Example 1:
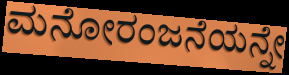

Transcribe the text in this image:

ಮನೋರಂಜನೆಯನ್ನೇ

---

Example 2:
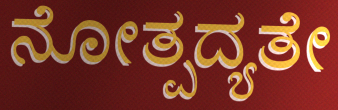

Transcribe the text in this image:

ನೋತ್ಪದ್ಯತೇ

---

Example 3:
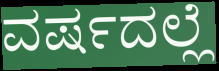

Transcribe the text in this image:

ವರ್ಷದಲ್ಲೆ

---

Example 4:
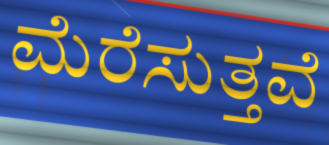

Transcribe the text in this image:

ಮೆರೆಸುತ್ತವೆ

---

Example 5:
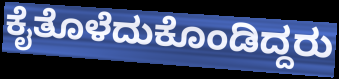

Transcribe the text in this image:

ಕೈತೊಳೆದುಕೊಂಡಿದ್ದರು